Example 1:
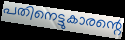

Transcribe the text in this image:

പതിനെട്ടുകാരന്റെ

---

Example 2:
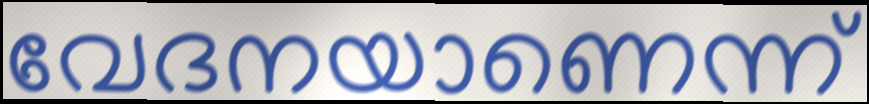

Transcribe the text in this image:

വേദനയാണെന്ന്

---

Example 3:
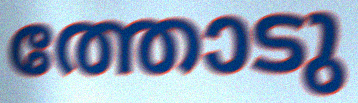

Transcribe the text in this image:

ത്തോടു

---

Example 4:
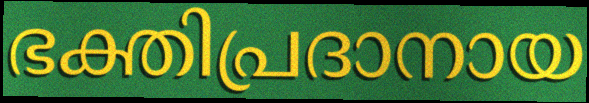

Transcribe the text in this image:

ഭക്തിപ്രദാനായ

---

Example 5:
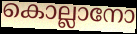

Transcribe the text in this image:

കൊല്ലാനോ